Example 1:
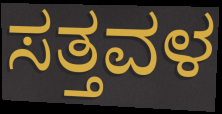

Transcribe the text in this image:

ಸತ್ತವಳ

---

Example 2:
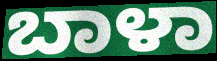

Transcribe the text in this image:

ಬಾಳಾ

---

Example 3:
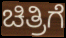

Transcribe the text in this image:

ಚಿತ್ರಿಗೆ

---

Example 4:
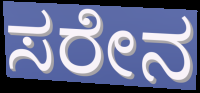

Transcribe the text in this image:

ಸರೇನ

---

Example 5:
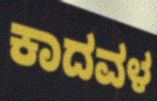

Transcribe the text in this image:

ಕಾದವಳ